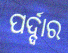
ପର୍ଦ୍ଦାର